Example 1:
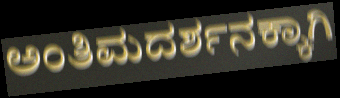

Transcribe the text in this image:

ಅಂತಿಮದರ್ಶನಕ್ಕಾಗಿ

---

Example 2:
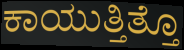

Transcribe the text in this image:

ಕಾಯುತ್ತಿತ್ತೊ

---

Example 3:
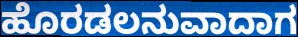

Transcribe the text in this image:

ಹೊರಡಲನುವಾದಾಗ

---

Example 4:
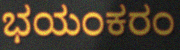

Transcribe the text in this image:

ಭಯಂಕರಂ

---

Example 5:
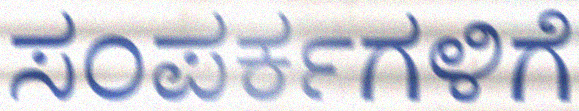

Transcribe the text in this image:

ಸಂಪರ್ಕಗಳಿಗೆ